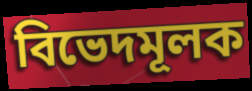
বিভেদমূলক